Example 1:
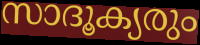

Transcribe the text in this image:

സാദൂക്യരും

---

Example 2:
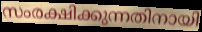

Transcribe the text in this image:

സംരക്ഷിക്കുന്നതിനായി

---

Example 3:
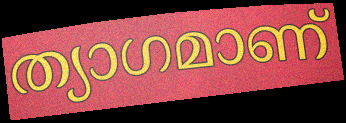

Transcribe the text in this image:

ത്യാഗമാണ്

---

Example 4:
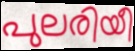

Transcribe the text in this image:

പുലരിയീ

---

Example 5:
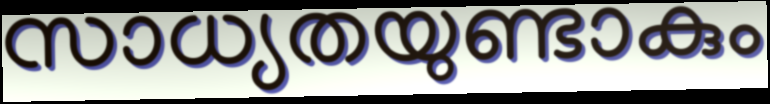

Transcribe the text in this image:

സാധ്യതയുണ്ടാകും